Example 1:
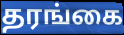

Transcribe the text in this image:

தரங்கை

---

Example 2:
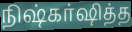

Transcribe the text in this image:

நிஷ்கர்ஷித்த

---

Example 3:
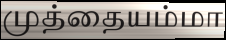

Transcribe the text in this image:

முத்தையம்மா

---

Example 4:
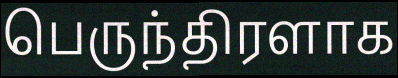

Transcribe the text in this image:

பெருந்திரளாக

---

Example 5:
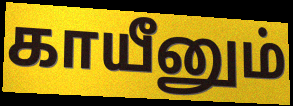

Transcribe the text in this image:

காயீனும்